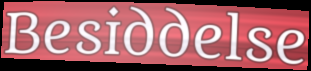
Besiddelse